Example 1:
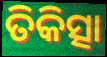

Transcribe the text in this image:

ତିକିତ୍ସା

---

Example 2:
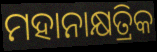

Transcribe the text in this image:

ମହାନାକ୍ଷତ୍ରିକ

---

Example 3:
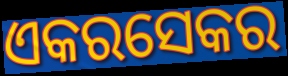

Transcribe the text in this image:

ଏକରସେକର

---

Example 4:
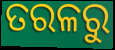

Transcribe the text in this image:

ତରଳରୁ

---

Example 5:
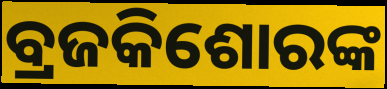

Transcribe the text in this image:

ବ୍ରଜକିଶୋରଙ୍କ